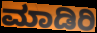
ಮಾಡಿರಿ